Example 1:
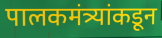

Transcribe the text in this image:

पालकमंत्र्यांकडून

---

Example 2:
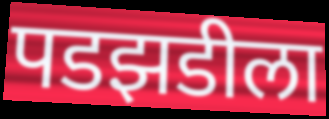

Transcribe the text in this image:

पडझडीला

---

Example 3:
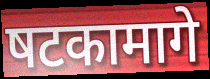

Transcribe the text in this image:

षटकामागे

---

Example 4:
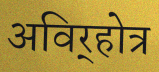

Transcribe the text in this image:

अविर्होत्र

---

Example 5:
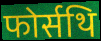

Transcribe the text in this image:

फोर्सथि